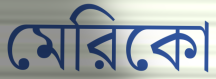
মেরিকো